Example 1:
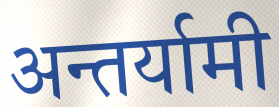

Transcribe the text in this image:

अन्तर्यामी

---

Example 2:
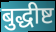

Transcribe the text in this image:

बुद्धीष्ट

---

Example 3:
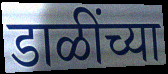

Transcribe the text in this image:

डाळींच्या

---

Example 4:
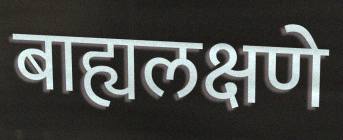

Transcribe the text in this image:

बाह्यलक्षणे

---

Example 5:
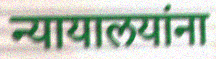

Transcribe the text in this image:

न्यायालयांना